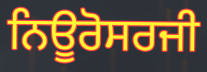
ਨਿਊਰੋਸਰਜੀ